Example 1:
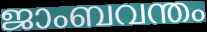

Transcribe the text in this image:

ജാംബവന്തം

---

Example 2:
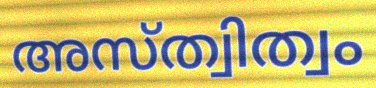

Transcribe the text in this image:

അസ്ത്വിത്വം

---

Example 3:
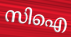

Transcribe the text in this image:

സിഐ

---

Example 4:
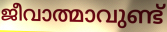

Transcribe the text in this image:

ജീവാത്മാവുണ്ട്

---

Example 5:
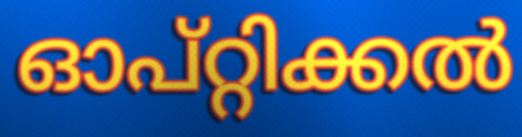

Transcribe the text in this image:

ഓപ്റ്റിക്കൽ